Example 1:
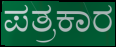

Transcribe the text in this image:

ಪತ್ರಕಾರ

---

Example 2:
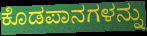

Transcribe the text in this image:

ಕೊಡಪಾನಗಳನ್ನು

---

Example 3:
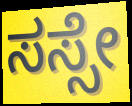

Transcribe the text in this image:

ಸಸ್ಸೇ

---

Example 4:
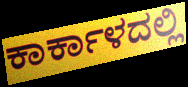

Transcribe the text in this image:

ಕಾರ್ಕಾಳದಲ್ಲಿ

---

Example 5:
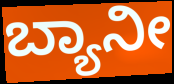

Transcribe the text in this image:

ಬ್ಯಾನೀ